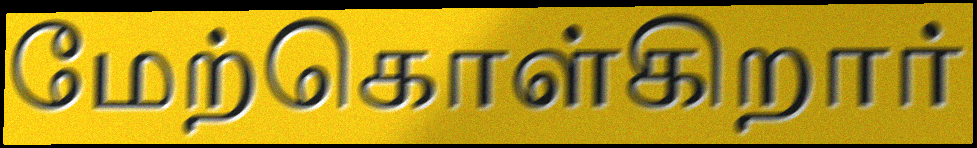
மேற்கொள்கிறார்